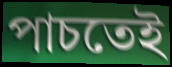
পাচতেই